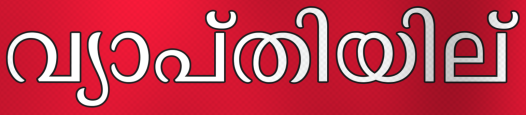
വ്യാപ്തിയില്